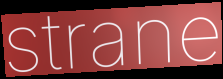
strane